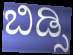
ಬಿಡ್ಸಿ